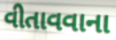
વીતાવવાના